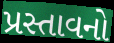
પ્રસ્તાવનો